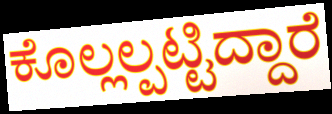
ಕೊಲ್ಲಲ್ಪಟ್ಟಿದ್ದಾರೆ